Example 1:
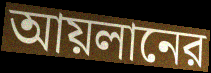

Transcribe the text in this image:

আয়লানের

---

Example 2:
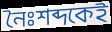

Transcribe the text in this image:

নৈঃশব্দকেই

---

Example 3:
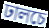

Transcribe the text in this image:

ঢালচে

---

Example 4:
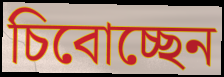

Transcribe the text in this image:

চিবোচ্ছেন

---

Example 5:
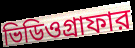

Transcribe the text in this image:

ভিডিওগ্রাফার